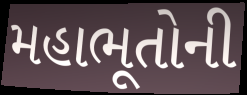
મહાભૂતોની